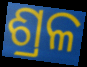
ଶ୍ରଳ